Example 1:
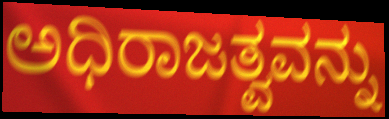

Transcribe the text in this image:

ಅಧಿರಾಜತ್ವವನ್ನು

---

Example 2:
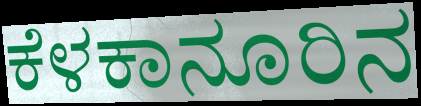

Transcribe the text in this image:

ಕೆಳಕಾನೂರಿನ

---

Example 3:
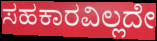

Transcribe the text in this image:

ಸಹಕಾರವಿಲ್ಲದೇ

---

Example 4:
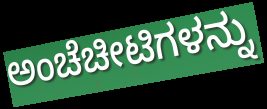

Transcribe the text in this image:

ಅಂಚೆಚೀಟಿಗಳನ್ನು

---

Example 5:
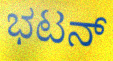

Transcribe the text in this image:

ಭಟನ್